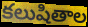
కలుషితాల